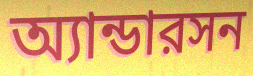
অ্যান্ডারসন